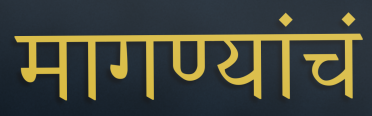
मागण्यांचं